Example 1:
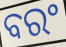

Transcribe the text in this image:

ବରଂ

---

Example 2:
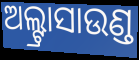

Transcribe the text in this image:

ଅଲ୍ଟ୍ରାସାଉଣ୍ଡ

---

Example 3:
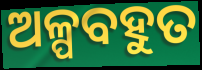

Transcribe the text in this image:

ଅଳ୍ପବହୁତ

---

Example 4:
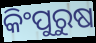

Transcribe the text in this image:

କିଂପୁରୁଷ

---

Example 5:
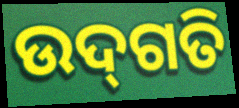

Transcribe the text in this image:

ଉଦ୍‌ଗତି